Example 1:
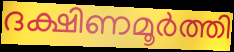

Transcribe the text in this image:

ദക്ഷിണമൂർത്തി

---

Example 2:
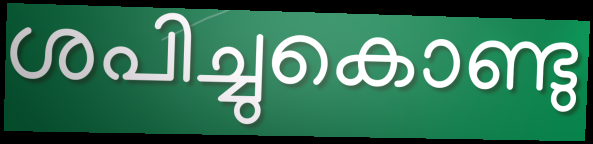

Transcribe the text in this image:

ശപിച്ചുകൊണ്ടു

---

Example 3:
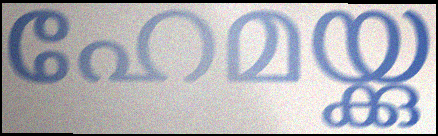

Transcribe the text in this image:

ഹേമയ്ക്കു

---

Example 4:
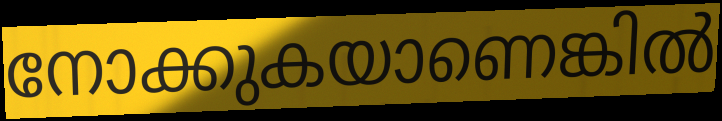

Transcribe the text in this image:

നോക്കുകയാണെങ്കിൽ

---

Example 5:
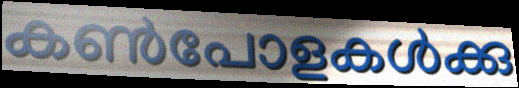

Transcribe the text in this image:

കൺപോളകൾക്കു